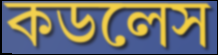
কডলেস